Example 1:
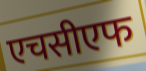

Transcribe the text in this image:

एचसीएफ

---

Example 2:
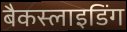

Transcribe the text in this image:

बैकस्लाइडिंग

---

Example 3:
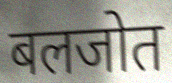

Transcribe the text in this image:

बलजोत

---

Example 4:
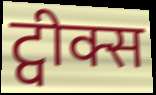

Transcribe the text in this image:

ट्वीक्स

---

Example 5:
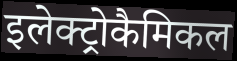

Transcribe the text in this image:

इलेक्ट्रोकैमिकल